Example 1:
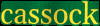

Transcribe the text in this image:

cassock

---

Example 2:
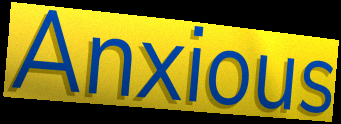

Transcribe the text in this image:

Anxious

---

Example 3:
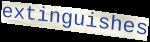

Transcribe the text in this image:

extinguishes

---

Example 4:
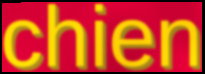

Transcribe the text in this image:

chien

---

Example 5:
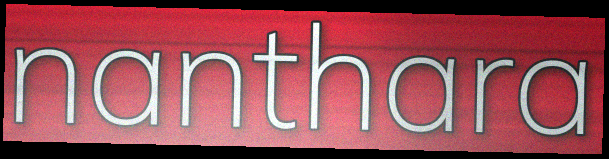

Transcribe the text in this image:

nanthara